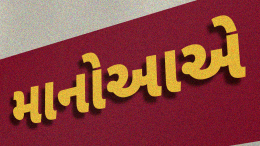
માનોઆએ